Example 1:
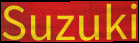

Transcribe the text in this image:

Suzuki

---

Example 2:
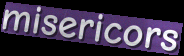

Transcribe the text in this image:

misericors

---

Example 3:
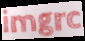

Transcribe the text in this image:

imgrc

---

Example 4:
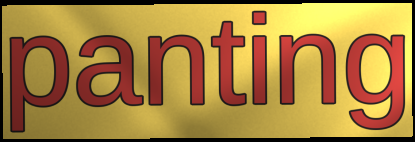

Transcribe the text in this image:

panting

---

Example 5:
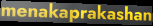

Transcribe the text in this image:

menakaprakashan